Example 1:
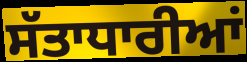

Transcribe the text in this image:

ਸੱਤਾਧਾਰੀਆਂ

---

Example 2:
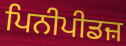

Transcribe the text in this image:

ਪਿਨੀਪੀਡਜ਼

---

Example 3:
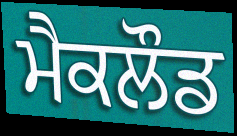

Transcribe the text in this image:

ਮੈਕਲੌਡ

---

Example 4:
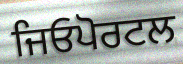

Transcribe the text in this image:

ਜਿਓਪੋਰਟਲ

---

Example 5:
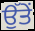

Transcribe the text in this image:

ਉੱਤੇਂ